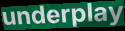
underplay